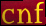
cnf